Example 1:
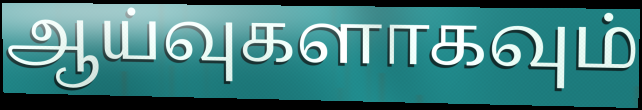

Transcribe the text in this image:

ஆய்வுகளாகவும்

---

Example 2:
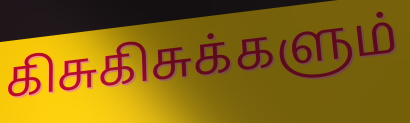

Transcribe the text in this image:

கிசுகிசுக்களும்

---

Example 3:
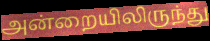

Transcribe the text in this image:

அன்றையிலிருந்து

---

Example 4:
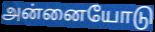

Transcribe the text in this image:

அன்னையோடு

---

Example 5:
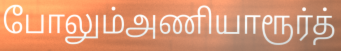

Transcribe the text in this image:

போலும்அணியாரூர்த்